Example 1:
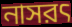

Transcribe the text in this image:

নাসরৎ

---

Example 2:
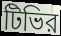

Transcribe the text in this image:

টিভির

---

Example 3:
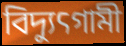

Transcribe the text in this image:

বিদ্যুৎগামী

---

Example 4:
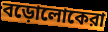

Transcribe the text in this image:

বড়োলোকেরা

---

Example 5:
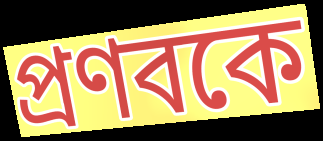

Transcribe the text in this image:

প্রণবকে